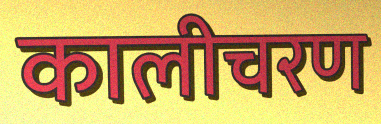
कालीचरण